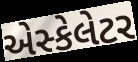
એસ્કેલેટર